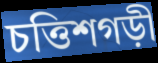
চত্তিশগড়ী